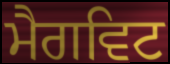
ਮੈਗਵਿਟ